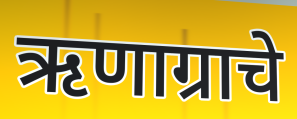
ऋणाग्राचे